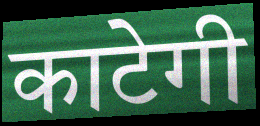
काटेगी